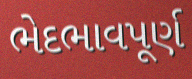
ભેદભાવપૂર્ણ